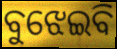
ବୁଝେଇବି